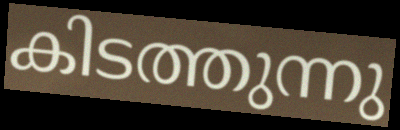
കിടത്തുന്നു